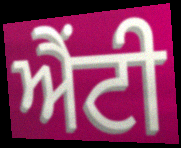
ਐਂਟੀ